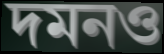
দমনও